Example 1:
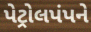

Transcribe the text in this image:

પેટ્રોલપંપને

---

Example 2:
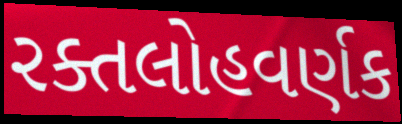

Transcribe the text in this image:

રક્તલોહવર્ણક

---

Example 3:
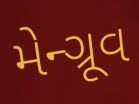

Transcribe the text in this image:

મેન્ગ્રૂવ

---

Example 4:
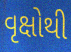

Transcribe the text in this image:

વૃક્ષોથી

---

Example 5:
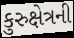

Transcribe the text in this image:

કુરુક્ષેત્રની